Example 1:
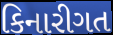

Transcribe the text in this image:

કિનારીગત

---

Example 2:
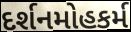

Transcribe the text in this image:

દર્શનમોહકર્મ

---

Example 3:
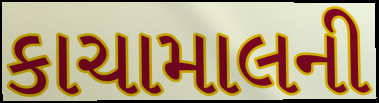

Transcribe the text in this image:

કાચામાલની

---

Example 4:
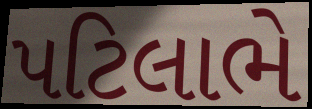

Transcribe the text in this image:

પટિલાભે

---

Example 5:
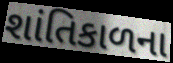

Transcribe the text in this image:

શાંતિકાળના